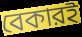
বেকারই